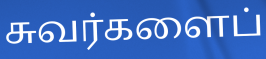
சுவர்களைப்